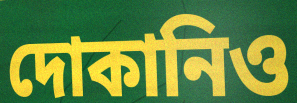
দোকানিও